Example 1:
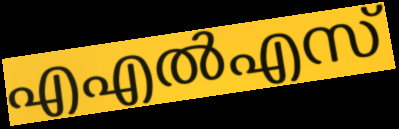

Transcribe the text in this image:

എഎൽഎസ്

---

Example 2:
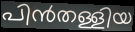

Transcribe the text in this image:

പിൻതള്ളിയ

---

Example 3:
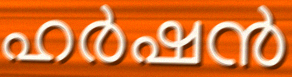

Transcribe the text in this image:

ഹർഷൻ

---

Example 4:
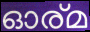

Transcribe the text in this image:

ഓര്മ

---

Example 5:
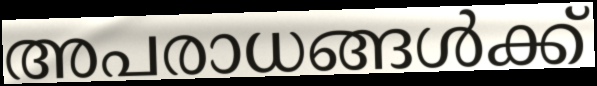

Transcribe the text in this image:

അപരാധങ്ങൾക്ക്